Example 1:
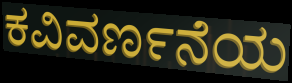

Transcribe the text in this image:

ಕವಿವರ್ಣನೆಯ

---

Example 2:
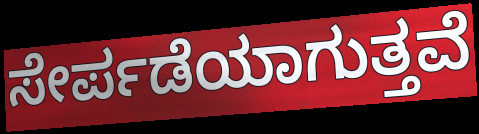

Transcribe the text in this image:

ಸೇರ್ಪಡೆಯಾಗುತ್ತವೆ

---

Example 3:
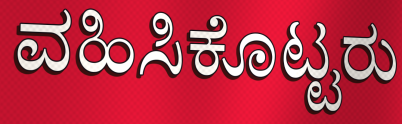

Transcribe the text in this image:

ವಹಿಸಿಕೊಟ್ಟರು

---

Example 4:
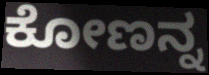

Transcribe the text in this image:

ಕೋಣನ್ನ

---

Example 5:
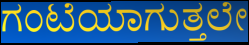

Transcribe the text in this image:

ಗಂಟೆಯಾಗುತ್ತಲೇ